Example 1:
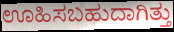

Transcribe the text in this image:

ಊಹಿಸಬಹುದಾಗಿತ್ತು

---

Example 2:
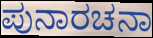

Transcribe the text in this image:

ಪುನಾರಚನಾ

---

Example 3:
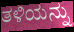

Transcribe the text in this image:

ತಳಿಯನ್ನು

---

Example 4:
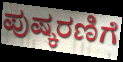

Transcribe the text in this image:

ಪುಷ್ಕರಣಿಗೆ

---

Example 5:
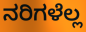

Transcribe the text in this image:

ನರಿಗಳೆಲ್ಲ